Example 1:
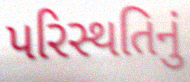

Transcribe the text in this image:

પરિસ્થતિનું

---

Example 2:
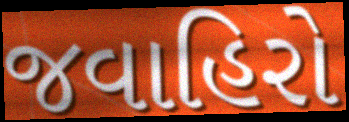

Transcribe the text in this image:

જવાહિરો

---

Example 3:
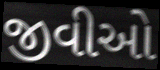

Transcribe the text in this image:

જીવીઓ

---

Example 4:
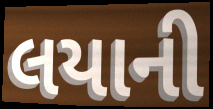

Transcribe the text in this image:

લયાની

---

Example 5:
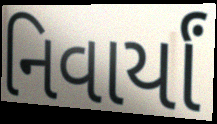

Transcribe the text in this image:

નિવાર્યાં